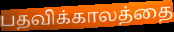
பதவிக்காலத்தை